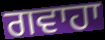
ਗਵਾਹਾ